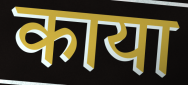
काया